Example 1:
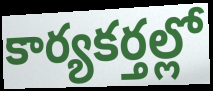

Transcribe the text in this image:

కార్యకర్తల్లో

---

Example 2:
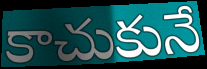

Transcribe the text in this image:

కాచుకునే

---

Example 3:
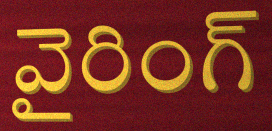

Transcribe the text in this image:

వైరింగ్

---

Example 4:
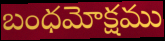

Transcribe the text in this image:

బంధమోక్షము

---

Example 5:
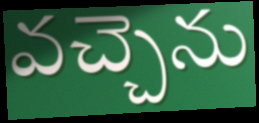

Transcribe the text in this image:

వచ్చెను